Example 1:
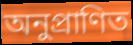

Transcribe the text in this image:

অনুপ্রাণিত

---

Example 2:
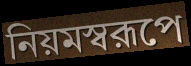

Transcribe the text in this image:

নিয়মস্বরূপে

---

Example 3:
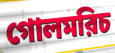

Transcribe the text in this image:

গোলমরিচ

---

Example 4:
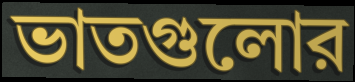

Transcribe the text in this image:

ভাতগুলোর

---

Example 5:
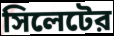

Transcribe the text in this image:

সিলেটের